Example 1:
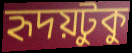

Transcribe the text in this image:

হৃদয়টুকু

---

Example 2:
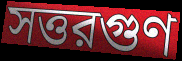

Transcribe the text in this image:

সত্তরগুণ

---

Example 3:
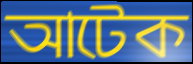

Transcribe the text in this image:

আটেক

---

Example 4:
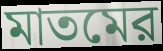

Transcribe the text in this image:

মাতমের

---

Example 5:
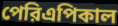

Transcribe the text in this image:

পেরিএপিকাল